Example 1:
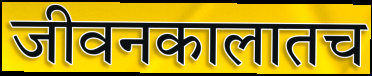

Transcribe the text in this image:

जीवनकालातच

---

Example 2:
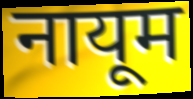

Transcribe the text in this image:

नायूम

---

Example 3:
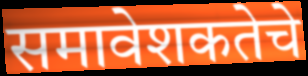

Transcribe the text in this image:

समावेशकतेचे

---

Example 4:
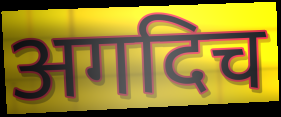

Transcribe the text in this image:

अगदिच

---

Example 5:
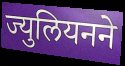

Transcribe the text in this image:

ज्युलियनने